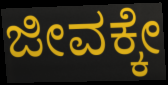
ಜೀವಕ್ಕೇ